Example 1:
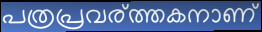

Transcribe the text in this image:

പത്രപ്രവര്ത്തകനാണ്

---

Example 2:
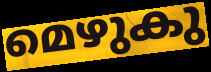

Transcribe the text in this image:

മെഴുകു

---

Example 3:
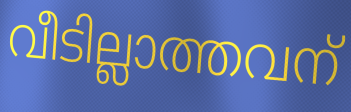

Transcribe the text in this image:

വീടില്ലാത്തവന്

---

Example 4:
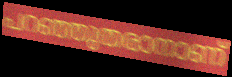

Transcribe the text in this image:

പറഞ്ഞുതരാനാണ്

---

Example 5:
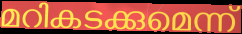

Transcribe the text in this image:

മറികടക്കുമെന്ന്